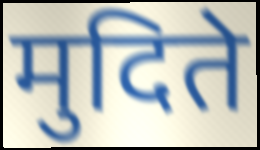
मुदिते